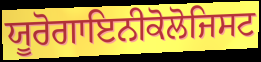
ਯੂਰੋਗਾਇਨੀਕੋਲੋਜਿਸਟ